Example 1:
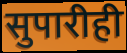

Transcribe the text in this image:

सुपारीही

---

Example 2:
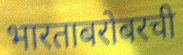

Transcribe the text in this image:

भारताबरोबरची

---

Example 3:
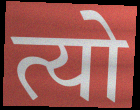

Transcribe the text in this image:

त्यो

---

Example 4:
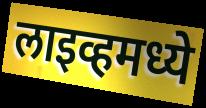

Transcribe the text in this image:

लाइव्हमध्ये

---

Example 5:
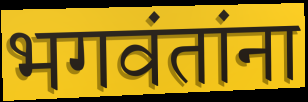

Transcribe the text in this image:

भगवंतांना